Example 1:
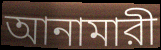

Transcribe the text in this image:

আনামারী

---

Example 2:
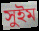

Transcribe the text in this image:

সুইম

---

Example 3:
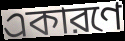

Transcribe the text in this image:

একারণে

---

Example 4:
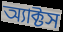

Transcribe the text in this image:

অ্যাক্টস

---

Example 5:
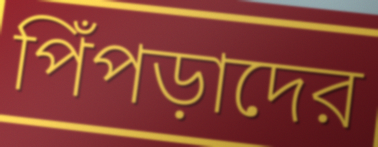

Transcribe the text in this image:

পিঁপড়াদের